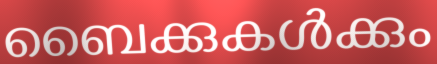
ബൈക്കുകൾക്കും